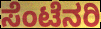
ಸೆಂಟೆನರಿ